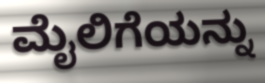
ಮೈಲಿಗೆಯನ್ನು